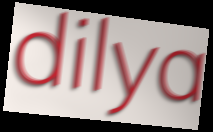
dilya